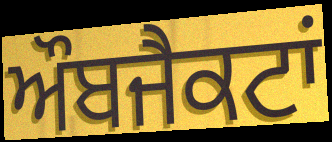
ਔਬਜੈਕਟਾਂ